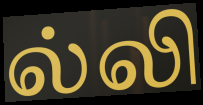
ல்லி